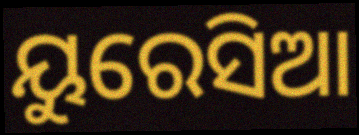
ୟୁରେସିଆ